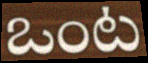
ఒంట